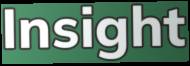
Insight